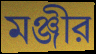
মঞ্জীর